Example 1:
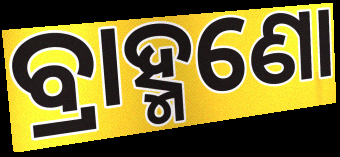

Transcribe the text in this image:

ବ୍ରାହ୍ମଣୋ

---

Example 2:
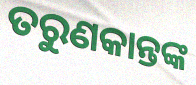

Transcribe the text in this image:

ତରୁଣକାନ୍ତଙ୍କ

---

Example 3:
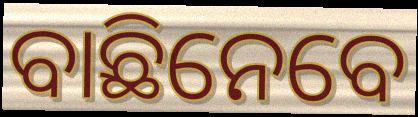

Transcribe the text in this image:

ବାଛିନେବେ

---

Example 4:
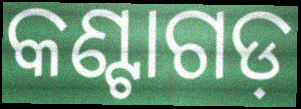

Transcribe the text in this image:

କଣ୍ଟାଗଡ଼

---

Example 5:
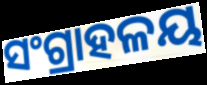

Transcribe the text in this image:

ସଂଗ୍ରାହଳୟ